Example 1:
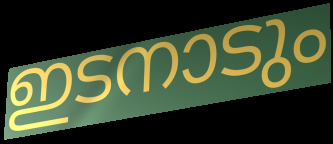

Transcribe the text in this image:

ഇടനാടും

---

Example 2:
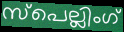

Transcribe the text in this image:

സ്പെല്ലിംഗ്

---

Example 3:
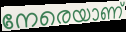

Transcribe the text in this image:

നേരെയാണ്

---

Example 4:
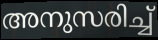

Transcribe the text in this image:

അനുസരിച്ച്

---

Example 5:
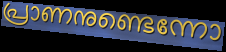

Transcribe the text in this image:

പ്രാണനുണ്ടെന്നോ